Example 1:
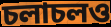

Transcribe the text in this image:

চলাচলও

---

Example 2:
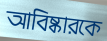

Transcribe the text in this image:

আবিষ্কারকে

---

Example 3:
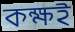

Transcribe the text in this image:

কক্ষই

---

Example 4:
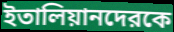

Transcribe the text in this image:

ইতালিয়ানদেরকে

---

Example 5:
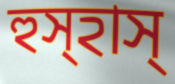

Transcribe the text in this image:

হুস্‌হাস্